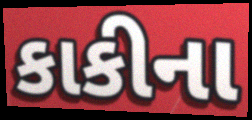
કાકીના